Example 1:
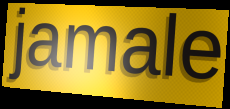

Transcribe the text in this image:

jamale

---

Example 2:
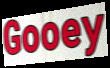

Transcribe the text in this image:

Gooey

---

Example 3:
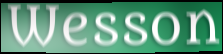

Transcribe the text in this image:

Wesson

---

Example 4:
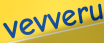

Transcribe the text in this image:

vevveru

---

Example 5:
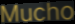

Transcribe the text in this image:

Mucho